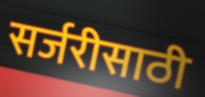
सर्जरीसाठी